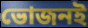
ভোজনই